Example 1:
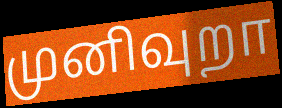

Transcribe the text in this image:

முனிவுறா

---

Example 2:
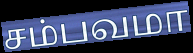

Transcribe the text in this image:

சம்பவமா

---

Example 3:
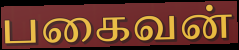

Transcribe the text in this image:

பகைவன்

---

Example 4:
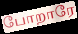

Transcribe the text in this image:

போறாரே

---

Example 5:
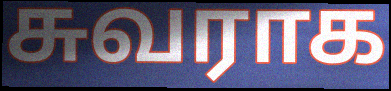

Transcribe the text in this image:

சுவராக